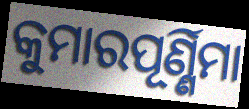
କୁମାରପୂର୍ଣ୍ଣିମା